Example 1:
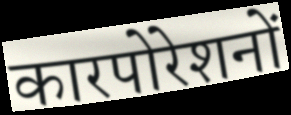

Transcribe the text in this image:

कारपोरेशनों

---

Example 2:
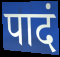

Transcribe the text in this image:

पादं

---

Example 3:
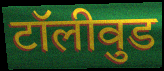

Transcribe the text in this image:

टॉलीवुड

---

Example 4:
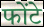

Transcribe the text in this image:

फोंटे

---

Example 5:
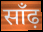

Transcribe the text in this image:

साँढ़